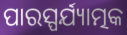
ପାରସ୍ପର୍ଯ୍ୟାତ୍ମକ